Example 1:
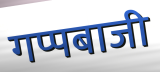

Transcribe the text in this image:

गप्पबाजी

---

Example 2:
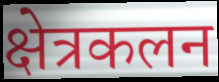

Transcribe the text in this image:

क्षेत्रकलन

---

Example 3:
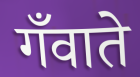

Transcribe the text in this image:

गँवाते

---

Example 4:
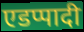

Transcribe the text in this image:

एडप्पादी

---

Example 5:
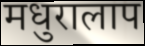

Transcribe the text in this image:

मधुरालाप